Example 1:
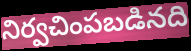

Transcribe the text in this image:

నిర్వచింపబడినది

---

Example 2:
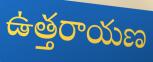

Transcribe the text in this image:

ఉత్తరాయణ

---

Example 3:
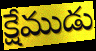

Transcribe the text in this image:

క్షేముడు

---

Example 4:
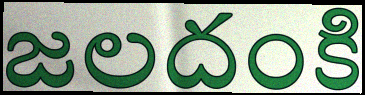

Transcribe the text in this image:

జలదంకి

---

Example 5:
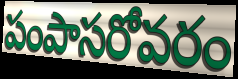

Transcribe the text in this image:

పంపాసరోవరం